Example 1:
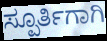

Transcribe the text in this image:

ಸ್ಪೂರ್ತಿಗಾಗಿ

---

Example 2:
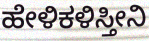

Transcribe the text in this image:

ಹೇಳಿಕಳಿಸ್ತೀನಿ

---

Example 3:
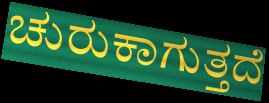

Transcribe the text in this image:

ಚುರುಕಾಗುತ್ತದೆ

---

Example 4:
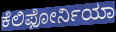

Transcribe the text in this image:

ಕೆಲಿಫೋರ್ನಿಯಾ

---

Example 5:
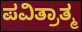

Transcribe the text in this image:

ಪವಿತ್ರಾತ್ಮ